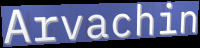
Arvachin